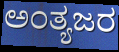
ಅಂತ್ಯಜರ